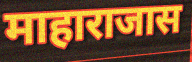
माहाराजास